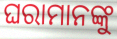
ଘରାମାନଙ୍କୁ